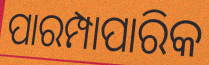
ପାରମ୍ପାପାରିକ